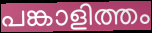
പങ്കാളിത്തം